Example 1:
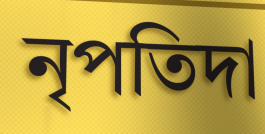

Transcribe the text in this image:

নৃপতিদা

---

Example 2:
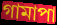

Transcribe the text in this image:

গামাপা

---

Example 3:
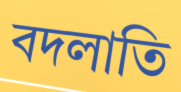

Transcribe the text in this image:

বদলাতি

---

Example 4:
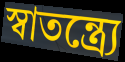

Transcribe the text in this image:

স্বাতন্ত্র্যে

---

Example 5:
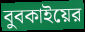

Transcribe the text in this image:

বুবকাইয়ের